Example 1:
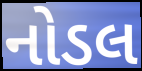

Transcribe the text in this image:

નોડલ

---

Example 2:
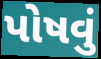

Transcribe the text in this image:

પોષવું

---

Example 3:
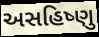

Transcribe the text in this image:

અસહિષ્ણુ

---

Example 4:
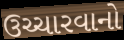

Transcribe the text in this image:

ઉચ્ચારવાનો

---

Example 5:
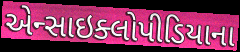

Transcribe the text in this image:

એન્સાઇક્લોપીડિયાના